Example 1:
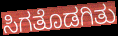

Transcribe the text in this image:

ಸಿಗತೊಡಗಿತು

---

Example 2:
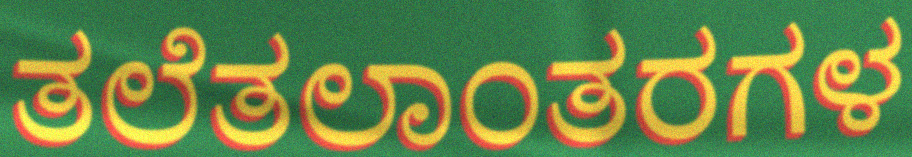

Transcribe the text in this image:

ತಲೆತಲಾಂತರಗಳ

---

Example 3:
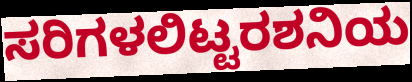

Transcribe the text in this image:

ಸರಿಗಳಲಿಟ್ಟರಶನಿಯ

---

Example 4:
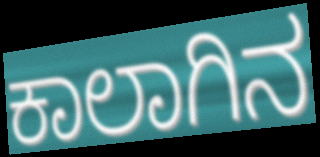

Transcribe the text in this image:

ಕಾಲಾಗಿನ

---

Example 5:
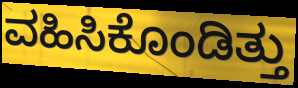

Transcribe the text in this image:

ವಹಿಸಿಕೊಂಡಿತ್ತು